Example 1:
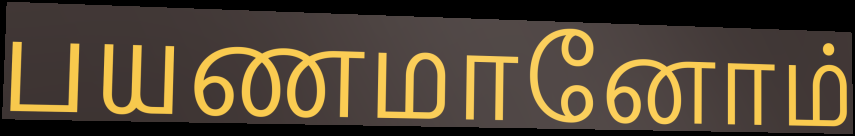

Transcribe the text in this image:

பயணமானோம்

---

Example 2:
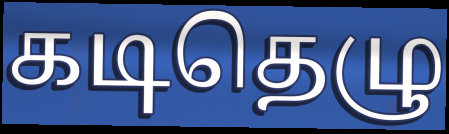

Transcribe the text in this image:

கடிதெழு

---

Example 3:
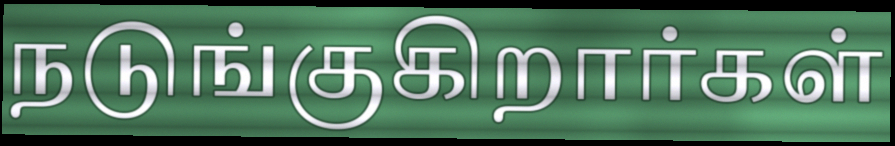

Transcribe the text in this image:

நடுங்குகிறார்கள்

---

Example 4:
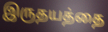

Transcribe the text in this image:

இருதயத்தை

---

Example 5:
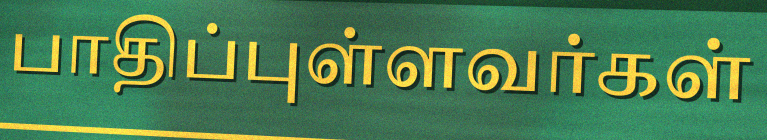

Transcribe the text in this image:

பாதிப்புள்ளவர்கள்